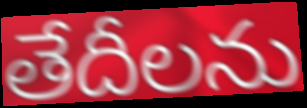
తేదీలను